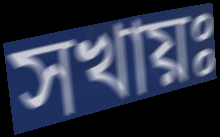
সখায়ঃ